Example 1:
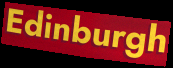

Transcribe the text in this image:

Edinburgh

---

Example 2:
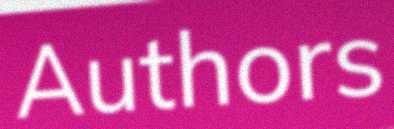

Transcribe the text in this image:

Authors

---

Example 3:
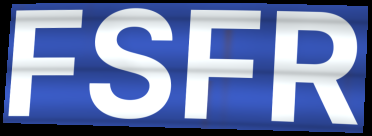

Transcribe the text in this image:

FSFR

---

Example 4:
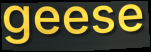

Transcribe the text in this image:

geese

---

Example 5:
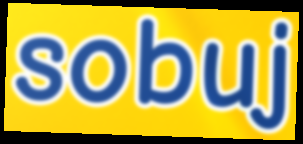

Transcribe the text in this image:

sobuj